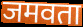
जमवता